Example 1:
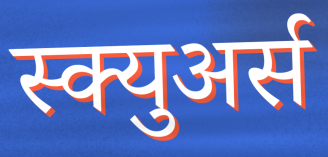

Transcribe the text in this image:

स्क्युअर्स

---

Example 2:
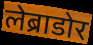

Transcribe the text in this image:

लेब्राडोर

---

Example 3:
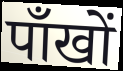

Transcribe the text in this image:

पाँखों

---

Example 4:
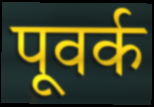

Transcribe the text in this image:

पूवर्क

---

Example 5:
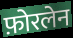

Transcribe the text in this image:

फ़ोरलेन